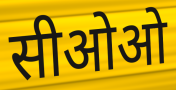
सीओओ